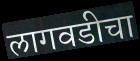
लागवडीचा